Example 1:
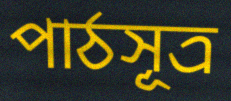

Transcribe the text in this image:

পাঠসূত্র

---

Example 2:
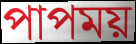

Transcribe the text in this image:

পাপময়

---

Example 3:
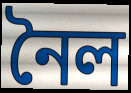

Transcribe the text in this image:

নৈল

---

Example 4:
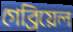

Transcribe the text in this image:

গেব্রিয়েল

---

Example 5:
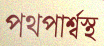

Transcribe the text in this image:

পথপার্শ্বস্থ